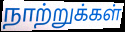
நாற்றுக்கள்